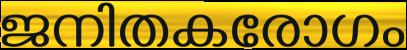
ജനിതകരോഗം